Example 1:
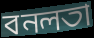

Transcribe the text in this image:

বনলতা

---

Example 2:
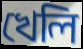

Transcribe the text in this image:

খেলি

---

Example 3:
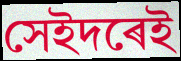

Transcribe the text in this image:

সেইদৰেই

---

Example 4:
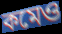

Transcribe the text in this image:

কমেও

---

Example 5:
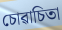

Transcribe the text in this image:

চোৱাচিতা